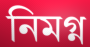
নিমগ্ন